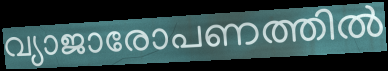
വ്യാജാരോപണത്തിൽ